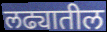
लढ्यातील